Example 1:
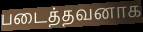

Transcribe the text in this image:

படைத்தவனாக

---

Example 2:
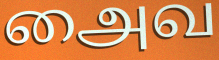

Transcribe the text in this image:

அைவ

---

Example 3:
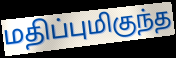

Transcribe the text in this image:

மதிப்புமிகுந்த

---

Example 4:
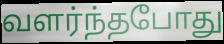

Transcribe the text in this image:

வளர்ந்தபோது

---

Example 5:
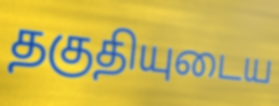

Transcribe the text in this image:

தகுதியுடைய